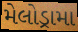
મેલોડ્રામા